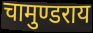
चामुण्डराय